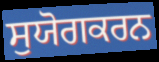
ਸੁਯੋਗਕਰਨ